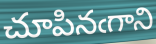
చూపినఁగాని